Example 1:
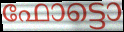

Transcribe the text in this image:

ഫോട്ടൊ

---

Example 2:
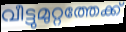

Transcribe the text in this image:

വീട്ടുമുറ്റത്തേക്ക്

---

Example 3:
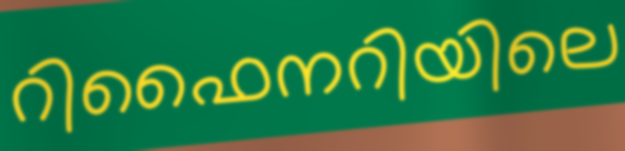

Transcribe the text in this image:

റിഫൈനറിയിലെ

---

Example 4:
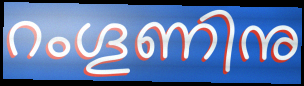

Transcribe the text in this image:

റംഗൂണിനു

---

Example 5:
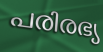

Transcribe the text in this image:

പരിരഭ്യ